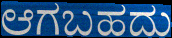
ಆಗಬಹದು